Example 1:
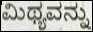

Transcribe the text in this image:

ಮಿಥ್ಯವನ್ನು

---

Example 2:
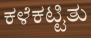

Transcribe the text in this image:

ಕಳೆಕಟ್ಟಿತು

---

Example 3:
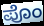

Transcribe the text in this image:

ಪೊಂ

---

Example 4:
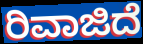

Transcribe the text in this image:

ರಿವಾಜಿದೆ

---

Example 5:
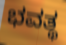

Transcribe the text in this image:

ಭವತ್ಥ